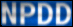
NPDD